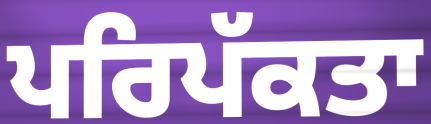
ਪਰਿਪੱਕਤਾ